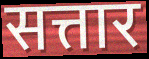
सत्तार